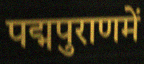
पद्मपुराणमें